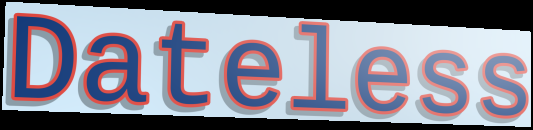
Dateless